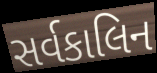
સર્વકાલિન